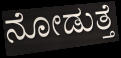
ನೋಡುತ್ತೆ